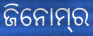
ଜିନୋମ୍‌ର